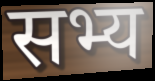
सभ्य